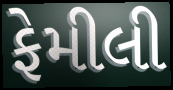
ફેમીલી